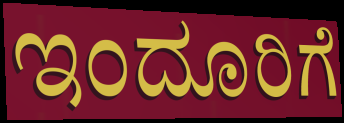
ಇಂದೂರಿಗೆ